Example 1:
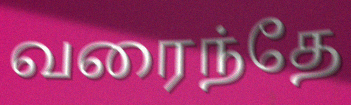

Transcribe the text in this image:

வரைந்தே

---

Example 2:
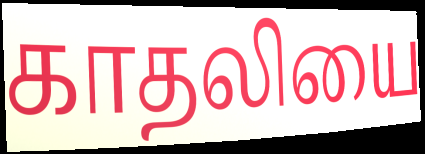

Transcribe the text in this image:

காதலியை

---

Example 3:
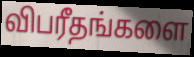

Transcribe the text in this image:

விபரீதங்களை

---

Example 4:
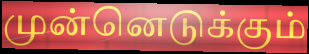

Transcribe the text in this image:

முன்னெடுக்கும்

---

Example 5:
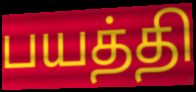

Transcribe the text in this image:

பயத்தி